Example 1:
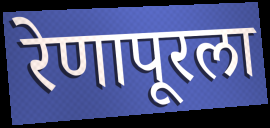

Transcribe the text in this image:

रेणापूरला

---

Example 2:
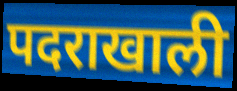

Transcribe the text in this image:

पदराखाली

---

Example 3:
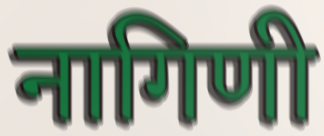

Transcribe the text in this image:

नागिणी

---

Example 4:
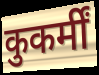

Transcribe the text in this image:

कुकर्मीं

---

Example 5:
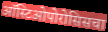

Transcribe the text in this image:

ऑस्टिओपोरोसिसचा